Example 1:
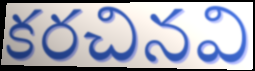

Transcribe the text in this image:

కరచినవి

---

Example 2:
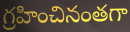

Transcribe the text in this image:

గ్రహించినంతగా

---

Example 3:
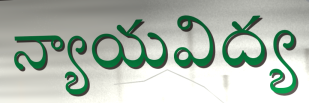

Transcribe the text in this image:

న్యాయవిద్య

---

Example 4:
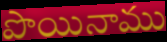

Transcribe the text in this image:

పొయినాము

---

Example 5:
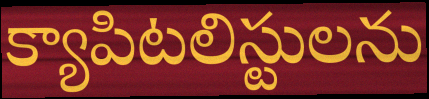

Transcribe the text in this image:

క్యాపిటలిస్టులను